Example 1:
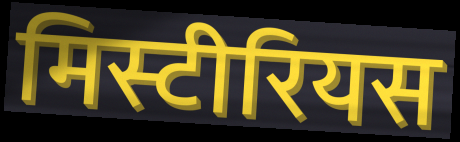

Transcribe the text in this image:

मिस्टीरियस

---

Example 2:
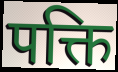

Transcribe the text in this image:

पक्ति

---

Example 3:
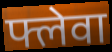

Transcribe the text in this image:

फ्लेवा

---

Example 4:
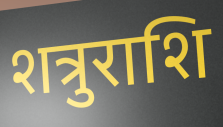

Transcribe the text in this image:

शत्रुराशि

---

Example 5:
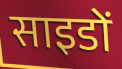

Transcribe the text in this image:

साइडों